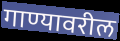
गाण्यावरील